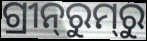
ଗ୍ରୀନ୍‌ରୁମ୍‌ରୁ